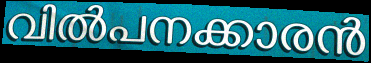
വിൽപനക്കാരൻ